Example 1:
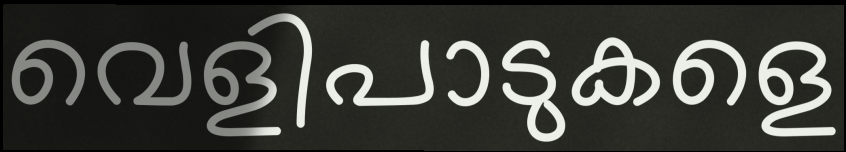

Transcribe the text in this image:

വെളിപാടുകളെ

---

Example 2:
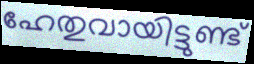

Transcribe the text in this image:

ഹേതുവായിട്ടുണ്ട്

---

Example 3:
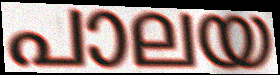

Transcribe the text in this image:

പാലയ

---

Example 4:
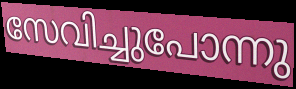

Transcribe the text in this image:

സേവിച്ചുപോന്നു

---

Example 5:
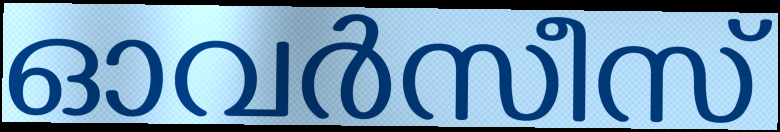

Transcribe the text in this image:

ഓവർസീസ്